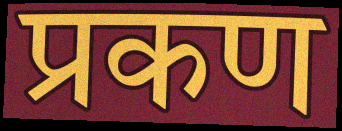
प्रकण